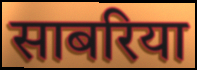
साबरिया